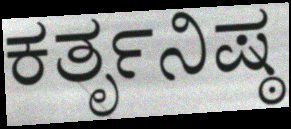
ಕರ್ತೃನಿಷ್ಠ